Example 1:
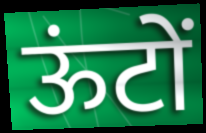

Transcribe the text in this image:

ऊंटों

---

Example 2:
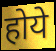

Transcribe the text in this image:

होये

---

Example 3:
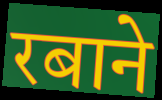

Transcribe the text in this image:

रबाने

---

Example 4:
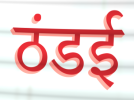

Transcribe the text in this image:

ठंडई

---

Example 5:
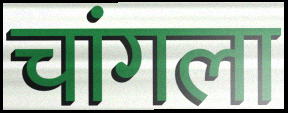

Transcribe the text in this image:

चांगला